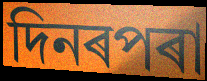
দিনৰপৰা